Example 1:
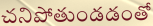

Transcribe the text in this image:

చనిపోతుండడంతో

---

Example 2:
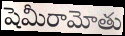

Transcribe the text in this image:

షెమీరామోతు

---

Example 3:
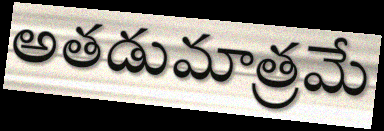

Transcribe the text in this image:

అతడుమాత్రమే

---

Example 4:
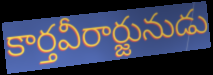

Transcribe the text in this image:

కార్తవీరార్జునుడు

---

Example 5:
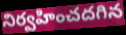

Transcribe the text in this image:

నిర్వహించదగిన